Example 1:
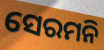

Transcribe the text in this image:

ସେରମନି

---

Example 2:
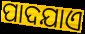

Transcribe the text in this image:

ପାଦଯାଏ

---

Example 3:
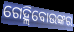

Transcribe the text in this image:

ଗେହ୍ଲିବୋଉଙ୍କର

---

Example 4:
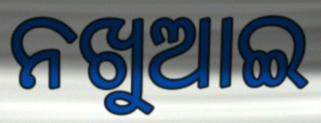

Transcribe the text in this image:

ନଖୁଆଇ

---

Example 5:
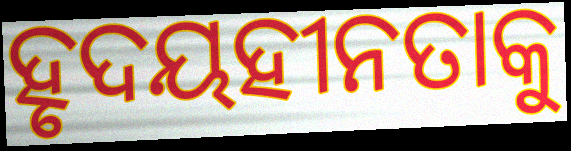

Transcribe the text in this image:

ହୃଦୟହୀନତାକୁ